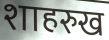
शाहरुख